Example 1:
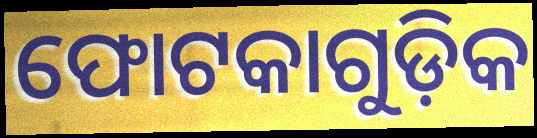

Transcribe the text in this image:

ଫୋଟକାଗୁଡ଼ିକ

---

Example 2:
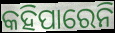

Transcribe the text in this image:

କହିପାରେନି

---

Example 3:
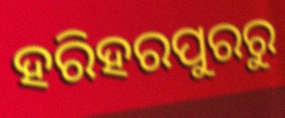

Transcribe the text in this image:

ହରିହରପୁରରୁ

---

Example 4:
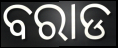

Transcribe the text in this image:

ବରାଡ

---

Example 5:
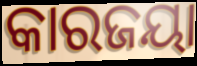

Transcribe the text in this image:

କାରଜୟା